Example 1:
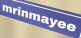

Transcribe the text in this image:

mrinmayee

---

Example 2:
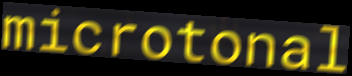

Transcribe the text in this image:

microtonal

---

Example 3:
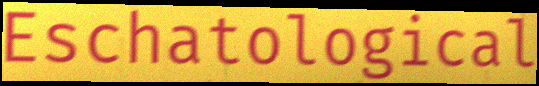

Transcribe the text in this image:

Eschatological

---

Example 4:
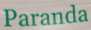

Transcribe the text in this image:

Paranda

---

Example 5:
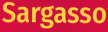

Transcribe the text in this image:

Sargasso